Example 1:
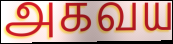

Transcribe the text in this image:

அகவய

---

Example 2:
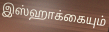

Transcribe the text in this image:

இஸ்ஹாக்கையும்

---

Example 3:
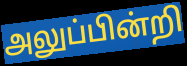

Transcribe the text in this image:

அலுப்பின்றி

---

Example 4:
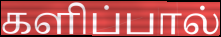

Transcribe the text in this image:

களிப்பால்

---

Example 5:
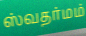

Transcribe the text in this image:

ஸ்வதர்மம்